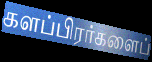
களப்பிரர்களைப்